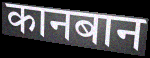
कानबान